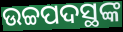
ଉଚ୍ଚପଦସ୍ଥଙ୍କ